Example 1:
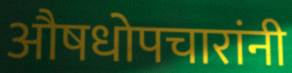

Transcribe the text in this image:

औषधोपचारांनी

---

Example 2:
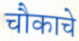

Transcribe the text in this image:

चौकाचे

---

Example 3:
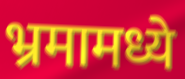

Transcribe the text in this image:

भ्रमामध्ये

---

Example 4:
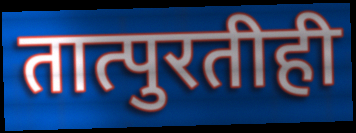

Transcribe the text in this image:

तात्पुरतीही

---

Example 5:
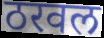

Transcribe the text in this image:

ठरवल